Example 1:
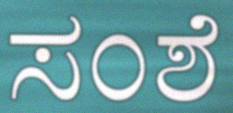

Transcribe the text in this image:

ಸಂಶೆ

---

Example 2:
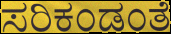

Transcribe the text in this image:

ಸರಿಕಂಡಂತೆ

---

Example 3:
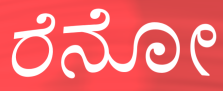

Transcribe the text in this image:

ರೆನೋ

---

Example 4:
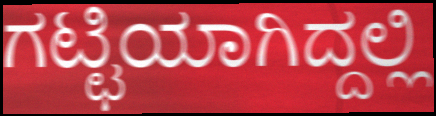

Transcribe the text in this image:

ಗಟ್ಟಿಯಾಗಿದ್ದಲ್ಲಿ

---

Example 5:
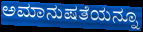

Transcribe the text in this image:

ಅಮಾನುಷತೆಯನ್ನೂ